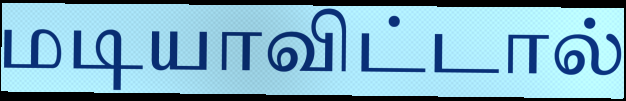
மடியாவிட்டால்